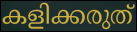
കളിക്കരുത്